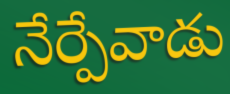
నేర్పేవాడు